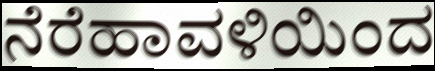
ನೆರೆಹಾವಳಿಯಿಂದ